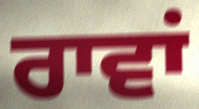
ਰਾਵਾਂ